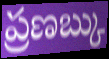
ప్రణబ్కు